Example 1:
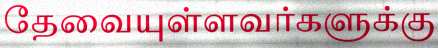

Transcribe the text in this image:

தேவையுள்ளவர்களுக்கு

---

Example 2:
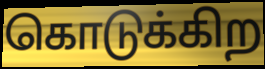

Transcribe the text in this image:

கொடுக்கிற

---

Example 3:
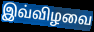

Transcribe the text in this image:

இவ்விழவை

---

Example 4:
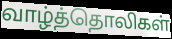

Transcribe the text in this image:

வாழ்த்தொலிகள்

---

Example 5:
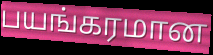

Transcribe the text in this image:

பயங்கரமான